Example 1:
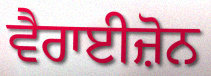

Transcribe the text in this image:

ਵੈਰਾਈਜ਼ੋਨ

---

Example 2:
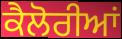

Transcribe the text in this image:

ਕੈਲੋਰੀਆਂ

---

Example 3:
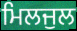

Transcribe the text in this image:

ਮਿਲਜੁਲ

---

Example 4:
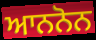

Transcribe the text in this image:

ਆਨਨੋਨ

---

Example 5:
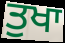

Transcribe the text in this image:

ਤੁਖਾ